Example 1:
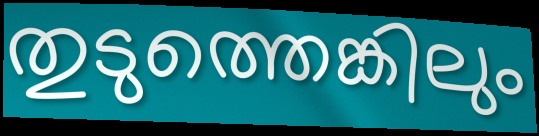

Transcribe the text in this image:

തുടുത്തെങ്കിലും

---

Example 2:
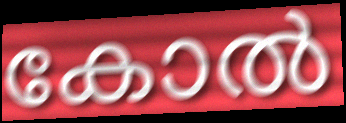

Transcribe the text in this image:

കോൽ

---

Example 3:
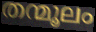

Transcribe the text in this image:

തന്മൂലം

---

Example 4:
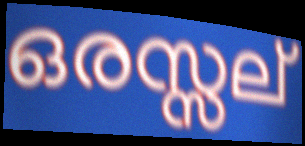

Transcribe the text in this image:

ഒരസ്സല്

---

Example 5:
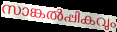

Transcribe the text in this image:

സാങ്കൽപ്പികവും